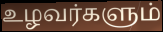
உழவர்களும்